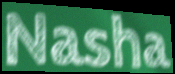
Nasha